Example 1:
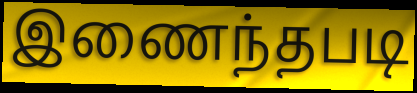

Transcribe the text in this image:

இணைந்தபடி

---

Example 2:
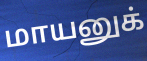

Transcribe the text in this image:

மாயனுக்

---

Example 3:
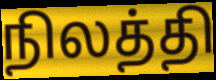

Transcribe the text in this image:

நிலத்தி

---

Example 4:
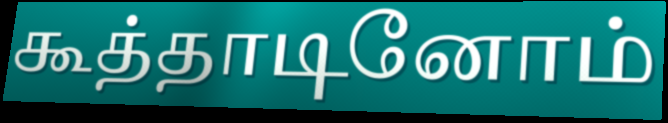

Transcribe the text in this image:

கூத்தாடினோம்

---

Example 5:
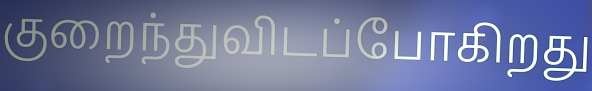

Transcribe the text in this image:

குறைந்துவிடப்போகிறது